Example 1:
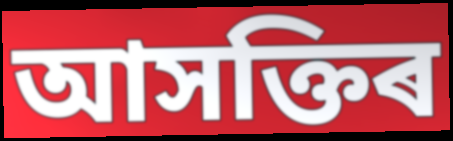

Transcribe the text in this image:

আসক্তিৰ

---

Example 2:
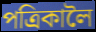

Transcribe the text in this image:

পত্ৰিকালৈ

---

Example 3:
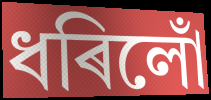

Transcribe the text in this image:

ধৰিলোঁ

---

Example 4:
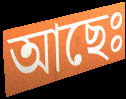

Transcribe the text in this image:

আছেঃ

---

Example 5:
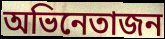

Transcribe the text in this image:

অভিনেতাজন